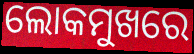
ଲୋକମୁଖରେ